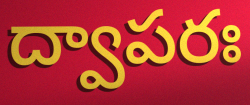
ద్వాపరః